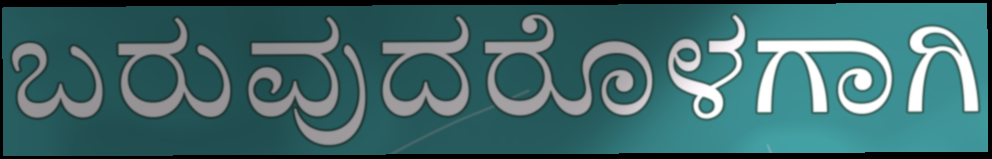
ಬರುವುದರೊಳಗಾಗಿ